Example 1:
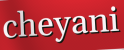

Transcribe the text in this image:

cheyani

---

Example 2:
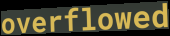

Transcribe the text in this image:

overflowed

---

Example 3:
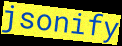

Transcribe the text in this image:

jsonify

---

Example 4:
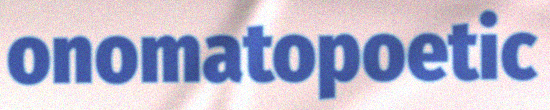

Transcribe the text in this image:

onomatopoetic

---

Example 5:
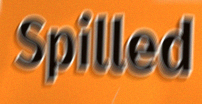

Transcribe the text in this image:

Spilled